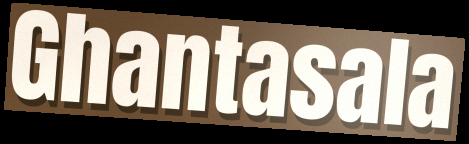
Ghantasala